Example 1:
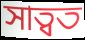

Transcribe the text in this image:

সাত্বত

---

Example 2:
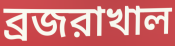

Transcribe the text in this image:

ব্রজরাখাল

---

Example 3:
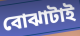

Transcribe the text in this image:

বোঝাটাই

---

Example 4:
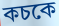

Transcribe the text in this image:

কচকে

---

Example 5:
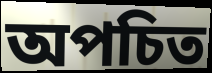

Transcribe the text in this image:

অপচিত